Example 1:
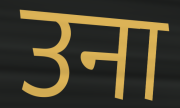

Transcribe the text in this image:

उना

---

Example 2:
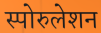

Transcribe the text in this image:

स्पोरुलेशन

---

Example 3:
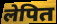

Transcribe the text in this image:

लेपित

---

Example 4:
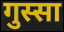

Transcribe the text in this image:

गुस्सा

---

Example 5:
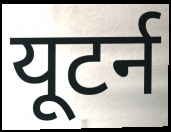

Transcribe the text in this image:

यूटर्न